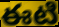
ఈటి